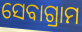
ସେବାଗ୍ରାମ